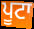
ਪੂਟਾ